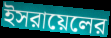
ইসরায়েলের